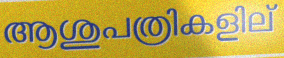
ആശുപത്രികളില്